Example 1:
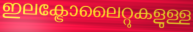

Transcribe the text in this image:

ഇലക്ട്രോലൈറ്റുകളുള്ള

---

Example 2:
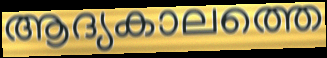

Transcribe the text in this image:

ആദ്യകാലത്തെ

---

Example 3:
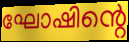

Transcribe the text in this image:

ഘോഷിന്റെ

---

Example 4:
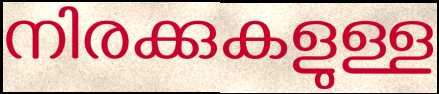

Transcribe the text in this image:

നിരക്കുകളുള്ള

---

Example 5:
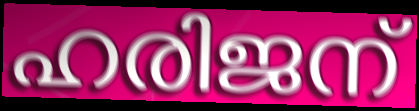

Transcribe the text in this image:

ഹരിജന്